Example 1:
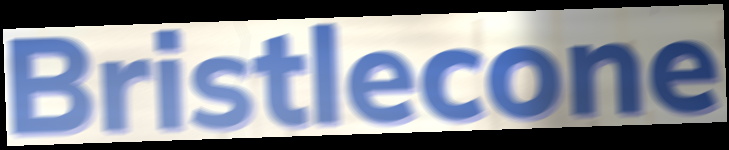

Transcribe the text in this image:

Bristlecone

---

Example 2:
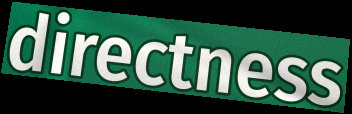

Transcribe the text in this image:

directness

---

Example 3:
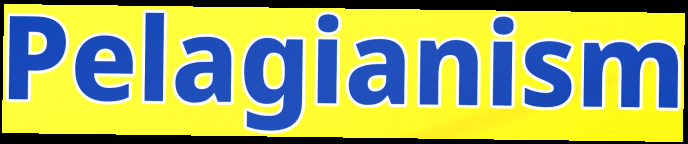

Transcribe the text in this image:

Pelagianism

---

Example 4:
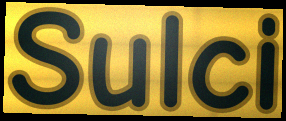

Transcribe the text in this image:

Sulci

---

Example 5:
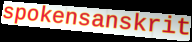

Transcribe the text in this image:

spokensanskrit